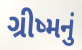
ગ્રીષ્મનું